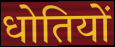
धोतियों